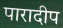
पारादीप